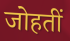
जोहतीं